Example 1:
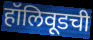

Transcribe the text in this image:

हॉलिवूडची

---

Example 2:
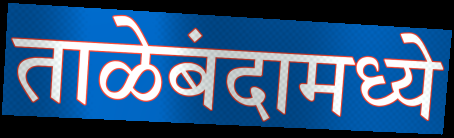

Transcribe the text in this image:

ताळेबंदामध्ये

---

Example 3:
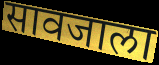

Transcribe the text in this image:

सावजाला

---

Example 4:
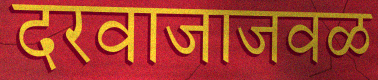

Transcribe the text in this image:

दरवाजाजवळ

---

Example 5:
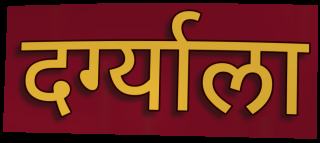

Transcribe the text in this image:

दर्ग्याला